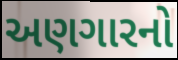
અણગારનો